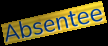
Absentee